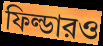
ফিল্ডারও